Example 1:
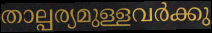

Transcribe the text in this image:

താല്പര്യമുള്ളവർക്കു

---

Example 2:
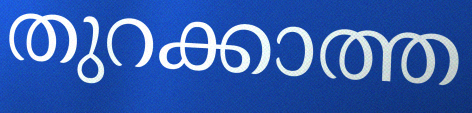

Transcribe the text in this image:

തുറക്കാത്ത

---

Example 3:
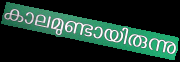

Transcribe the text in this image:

കാലമുണ്ടായിരുന്നു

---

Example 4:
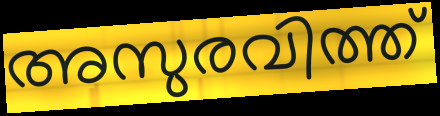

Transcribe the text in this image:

അസുരവിത്ത്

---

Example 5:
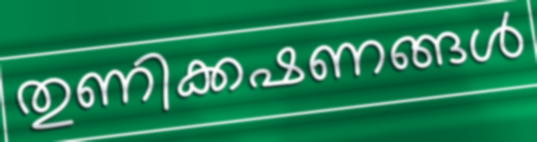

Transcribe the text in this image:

തുണിക്കഷണങ്ങൾ